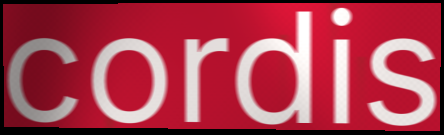
cordis